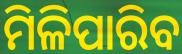
ମିଳିପାରିବ